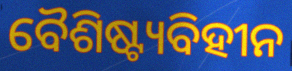
ବୈଶିଷ୍ଟ୍ୟବିହୀନ